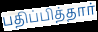
பதிப்பித்தார்